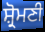
ਸ਼੍ਰੋਮਣੀ